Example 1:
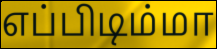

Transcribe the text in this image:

எப்பிடிம்மா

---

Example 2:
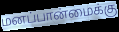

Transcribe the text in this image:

மனப்பான்மைக்கு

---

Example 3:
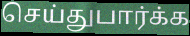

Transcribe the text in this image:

செய்துபார்க்க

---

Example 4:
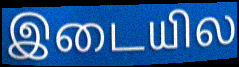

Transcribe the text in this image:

இடையில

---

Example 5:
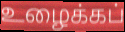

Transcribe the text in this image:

உழைக்கப்